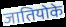
जातियोके